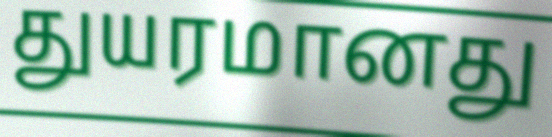
துயரமானது